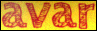
avar